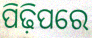
ପିଢ଼ିପରେ